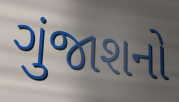
ગુંજાશનો